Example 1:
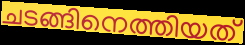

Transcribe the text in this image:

ചടങ്ങിനെത്തിയത്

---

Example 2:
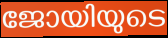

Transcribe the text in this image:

ജോയിയുടെ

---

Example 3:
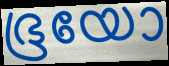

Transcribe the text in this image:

ഭൂയോ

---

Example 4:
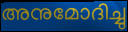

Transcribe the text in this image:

അനുമോദിച്ചു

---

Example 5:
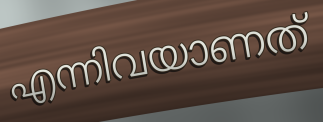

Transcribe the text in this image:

എന്നിവയാണത്